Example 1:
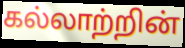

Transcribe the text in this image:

கல்லாற்றின்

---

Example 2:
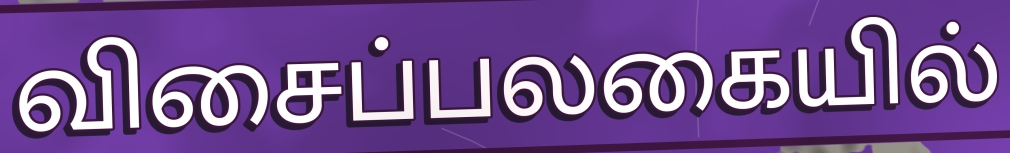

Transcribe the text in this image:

விசைப்பலகையில்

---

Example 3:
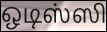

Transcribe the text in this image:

ஒடிஸ்ஸி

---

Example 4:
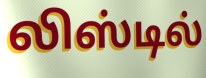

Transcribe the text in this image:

லிஸ்டில்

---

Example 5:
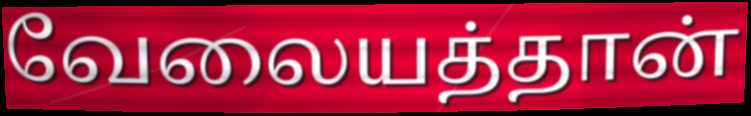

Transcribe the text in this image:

வேலையத்தான்